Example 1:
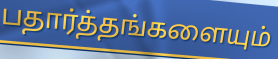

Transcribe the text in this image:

பதார்த்தங்களையும்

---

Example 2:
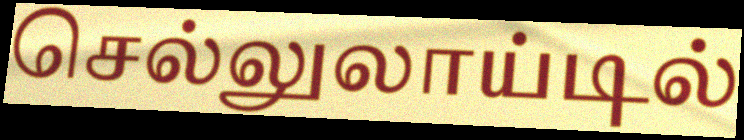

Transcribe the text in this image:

செல்லுலாய்டில்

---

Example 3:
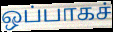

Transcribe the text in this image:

ஒப்பாகச்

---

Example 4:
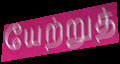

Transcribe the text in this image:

யேற்றுத்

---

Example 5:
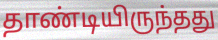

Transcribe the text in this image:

தாண்டியிருந்தது